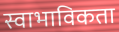
स्वाभाविकता